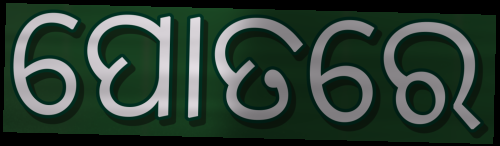
ପୋତରେ